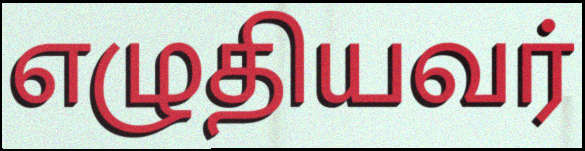
எழுதியவர்